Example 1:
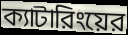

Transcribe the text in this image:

ক্যাটারিংয়ের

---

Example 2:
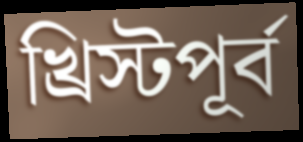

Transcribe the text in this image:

খ্রিস্টপূর্ব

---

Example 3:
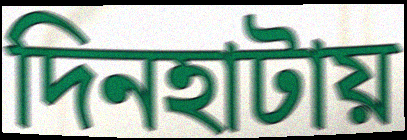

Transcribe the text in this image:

দিনহাটায়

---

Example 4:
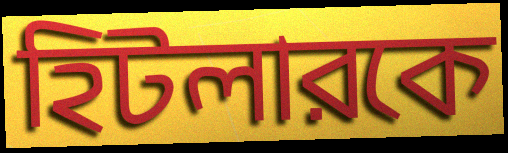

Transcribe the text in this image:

হিটলারকে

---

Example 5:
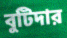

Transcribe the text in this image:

বুটিদার